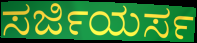
ಸರ್ಜಿಯರ್ಸ